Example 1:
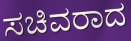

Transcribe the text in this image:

ಸಚಿವರಾದ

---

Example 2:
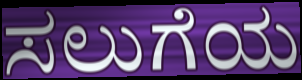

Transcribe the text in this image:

ಸಲುಗೆಯ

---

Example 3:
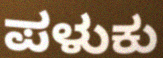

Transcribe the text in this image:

ಪಳುಕು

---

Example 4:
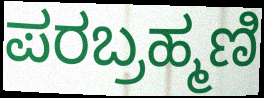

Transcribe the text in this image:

ಪರಬ್ರಹ್ಮಣಿ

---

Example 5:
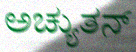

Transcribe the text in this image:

ಅಚ್ಯುತನ್